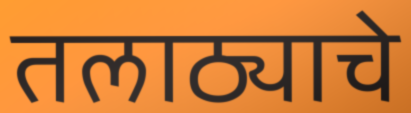
तलाठ्याचे